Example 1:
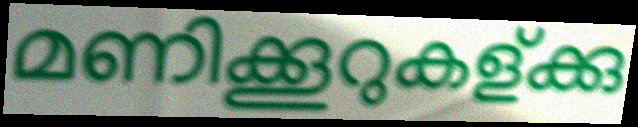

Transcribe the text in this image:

മണിക്കൂറുകള്ക്കു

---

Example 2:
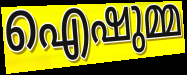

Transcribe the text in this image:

ഐഷുമ്മ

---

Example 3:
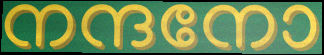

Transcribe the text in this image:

നന്ദനോ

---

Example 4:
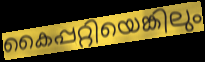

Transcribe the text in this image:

കൈപ്പറ്റിയെങ്കിലും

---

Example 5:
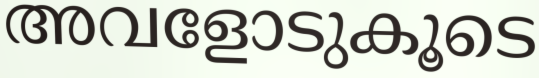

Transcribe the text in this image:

അവളോടുകൂടെ